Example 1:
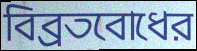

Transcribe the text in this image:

বিব্রতবোধের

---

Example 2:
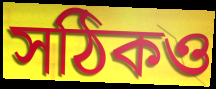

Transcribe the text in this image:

সঠিকও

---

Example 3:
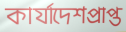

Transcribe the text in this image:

কার্যাদেশপ্রাপ্ত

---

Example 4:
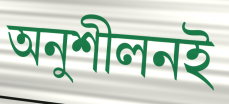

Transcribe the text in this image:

অনুশীলনই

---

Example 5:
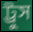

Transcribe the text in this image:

ট্রুস